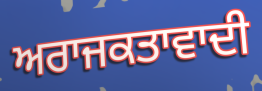
ਅਰਾਜਕਤਾਵਾਦੀ